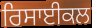
ਰਿਸਾਈਕਲ